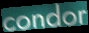
condor